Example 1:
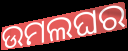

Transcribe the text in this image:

ଉମଲଘର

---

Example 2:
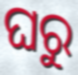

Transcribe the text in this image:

ଘରୁ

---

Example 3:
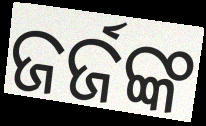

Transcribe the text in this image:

ଜର୍ଜଙ୍କ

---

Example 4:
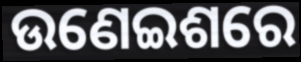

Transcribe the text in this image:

ଉଣେଇଶରେ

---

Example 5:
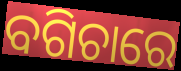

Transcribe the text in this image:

ବଗିଚାରେ